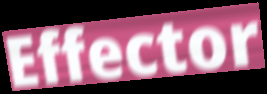
Effector